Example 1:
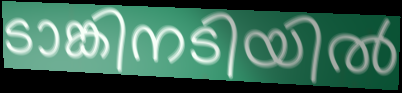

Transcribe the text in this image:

ടാങ്കിനടിയിൽ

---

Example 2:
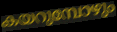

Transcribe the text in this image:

കയറുമ്പോഴും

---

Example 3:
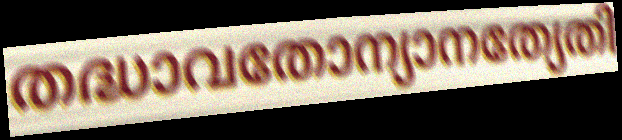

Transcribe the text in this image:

തദ്ധാവതോന്യാനത്യേതി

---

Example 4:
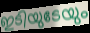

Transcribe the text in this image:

ഇടിയുടേയും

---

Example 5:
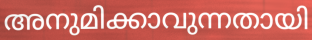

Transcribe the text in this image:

അനുമിക്കാവുന്നതായി